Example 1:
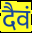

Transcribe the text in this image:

दैवं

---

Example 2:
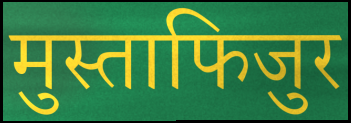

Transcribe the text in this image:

मुस्ताफिजुर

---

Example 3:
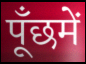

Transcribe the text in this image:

पूँछमें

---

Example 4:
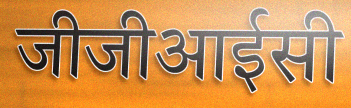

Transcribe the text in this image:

जीजीआईसी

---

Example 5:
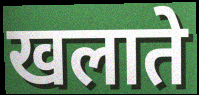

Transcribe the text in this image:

खलाते